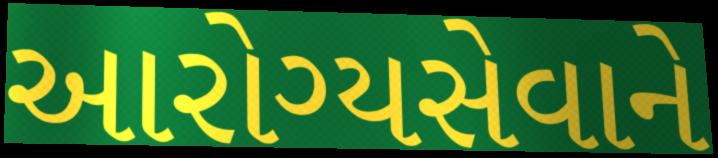
આરોગ્યસેવાને